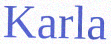
Karla